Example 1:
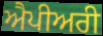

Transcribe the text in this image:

ਐਪੀਅਰੀ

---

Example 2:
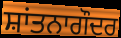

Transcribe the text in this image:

ਸ਼ਾਂਤਨਾਗੌਦਰ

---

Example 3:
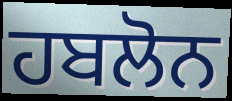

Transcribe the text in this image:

ਹਬਲੋਨ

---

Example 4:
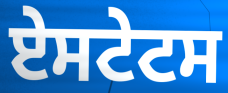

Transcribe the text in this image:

ਏਸਟੇਟਸ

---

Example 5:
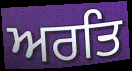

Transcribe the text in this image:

ਅਰਤਿ